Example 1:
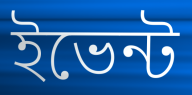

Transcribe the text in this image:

ইভেন্ট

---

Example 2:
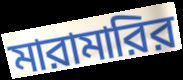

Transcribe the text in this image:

মারামারির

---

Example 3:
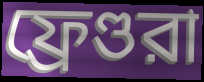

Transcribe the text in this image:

ফ্রেণ্ডরা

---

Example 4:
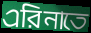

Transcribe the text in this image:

এরিনাতে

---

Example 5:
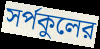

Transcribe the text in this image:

সর্পকুলের